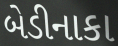
બેડીનાકા